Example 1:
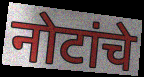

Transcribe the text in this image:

नोटांचे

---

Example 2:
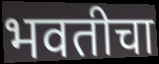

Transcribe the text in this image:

भवतीचा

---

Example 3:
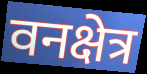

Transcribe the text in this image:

वनक्षेत्र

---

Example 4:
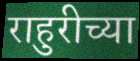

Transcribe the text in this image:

राहुरीच्या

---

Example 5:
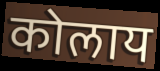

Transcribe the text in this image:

कोलाय